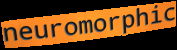
neuromorphic